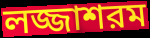
লজ্জাশরম